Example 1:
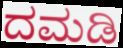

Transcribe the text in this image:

ದಮಡಿ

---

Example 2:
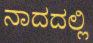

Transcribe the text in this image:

ನಾದದಲ್ಲಿ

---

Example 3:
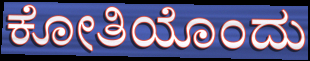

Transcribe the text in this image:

ಕೋತಿಯೊಂದು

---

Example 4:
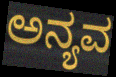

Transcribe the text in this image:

ಅನ್ಯವ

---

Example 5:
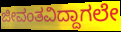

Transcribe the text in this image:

ಜೀವಂತವಿದ್ದಾಗಲೇ